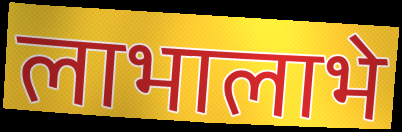
लाभालाभे